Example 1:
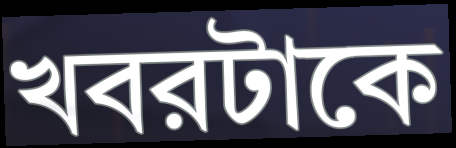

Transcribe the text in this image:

খবরটাকে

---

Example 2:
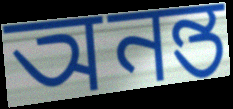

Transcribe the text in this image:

অনন্ত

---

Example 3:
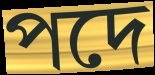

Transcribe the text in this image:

পদে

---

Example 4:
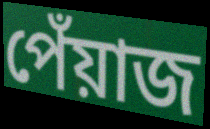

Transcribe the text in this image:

পেঁয়াজ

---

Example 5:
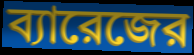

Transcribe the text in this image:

ব্যারেজের